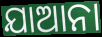
ଯାଆନା